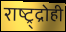
राष्ट्र्द्रोही